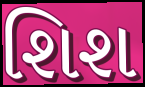
શિશ